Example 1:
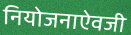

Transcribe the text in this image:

नियोजनाऐवजी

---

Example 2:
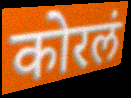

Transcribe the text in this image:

कोरलं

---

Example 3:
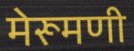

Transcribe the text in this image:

मेरूमणी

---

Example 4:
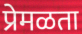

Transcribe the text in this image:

प्रेमळता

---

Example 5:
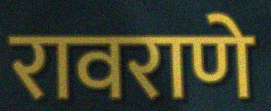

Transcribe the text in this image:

रावराणे